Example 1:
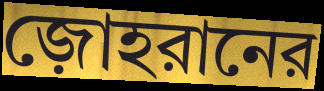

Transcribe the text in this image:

জ়োহরানের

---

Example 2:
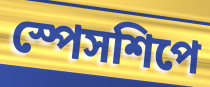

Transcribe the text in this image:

স্পেসশিপে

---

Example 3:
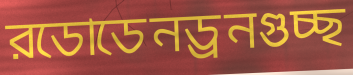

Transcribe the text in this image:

রডোডেনড্রনগুচ্ছ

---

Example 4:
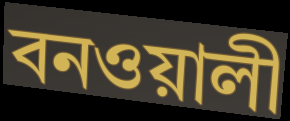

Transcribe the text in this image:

বনওয়ালী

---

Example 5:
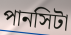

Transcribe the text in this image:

পানসিটা